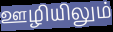
ஊழியிலும்